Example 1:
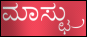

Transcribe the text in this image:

ಮಾಸ್ಟ್ರು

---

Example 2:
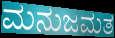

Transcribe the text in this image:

ಮನುಜಮತ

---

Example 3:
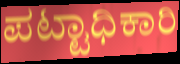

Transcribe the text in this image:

ಪಟ್ಟಾಧಿಕಾರಿ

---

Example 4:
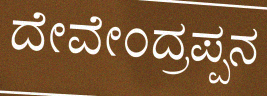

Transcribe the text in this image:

ದೇವೇಂದ್ರಪ್ಪನ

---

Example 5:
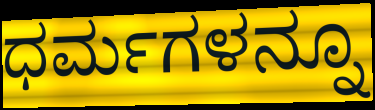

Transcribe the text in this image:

ಧರ್ಮಗಳನ್ನೂ